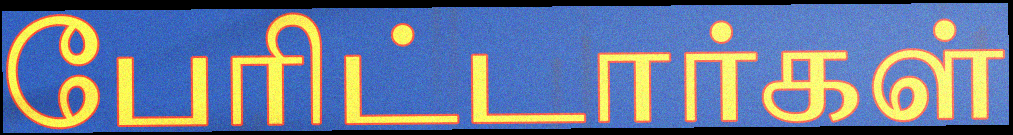
பேரிட்டார்கள்